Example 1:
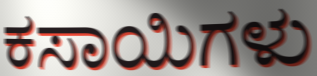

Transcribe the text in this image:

ಕಸಾಯಿಗಳು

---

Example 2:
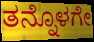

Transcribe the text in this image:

ತನ್ನೊಳಗೇ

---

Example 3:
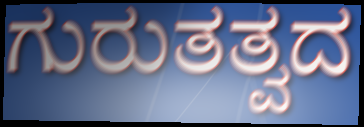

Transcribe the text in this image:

ಗುರುತತ್ವದ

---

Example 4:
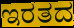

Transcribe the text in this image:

ಇರತದ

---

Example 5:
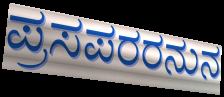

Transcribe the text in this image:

ಪ್ರಸಪರರನುನ